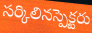
సర్కిలినస్పెక్టరు